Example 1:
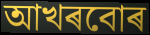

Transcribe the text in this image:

আখৰবোৰ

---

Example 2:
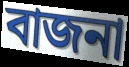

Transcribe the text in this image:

বাজনা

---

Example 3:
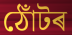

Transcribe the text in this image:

ঠোঁটৰ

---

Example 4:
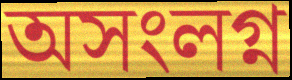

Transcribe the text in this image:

অসংলগ্ন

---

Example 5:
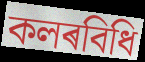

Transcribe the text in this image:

কলৰবিধি